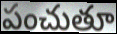
పంచుతూ